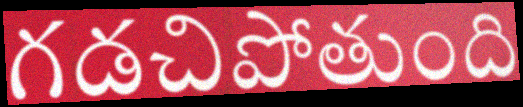
గడచిపోతుంది